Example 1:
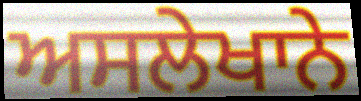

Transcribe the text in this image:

ਅਸਲੇਖਾਨੇ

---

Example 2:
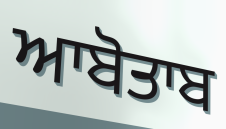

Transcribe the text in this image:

ਆਬੋਤਾਬ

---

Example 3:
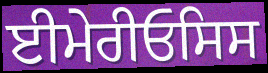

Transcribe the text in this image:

ਈਮੇਰੀਓਸਿਸ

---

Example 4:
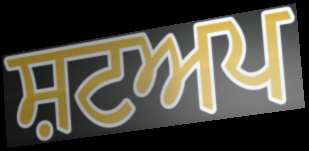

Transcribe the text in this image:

ਸ਼ਟਅਪ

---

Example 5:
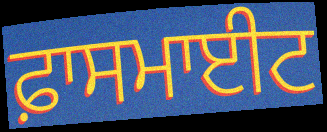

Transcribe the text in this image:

ਫ਼ਾਸਮਾਈਟ